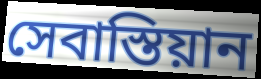
সেবাস্তিয়ান